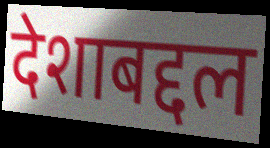
देशाबद्दल